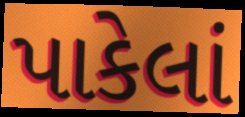
પાકેલાં